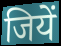
जियें